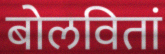
बोलवितां